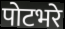
पोटभरे